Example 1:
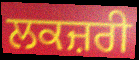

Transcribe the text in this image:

ਲਕਜ਼ਰੀ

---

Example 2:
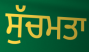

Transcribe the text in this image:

ਸੁੱਚਮਤਾ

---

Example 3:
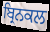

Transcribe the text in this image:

ਬ੍ਰਿਨਕਲ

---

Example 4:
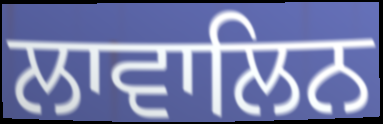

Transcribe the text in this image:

ਲਾਵਾਲਿਨ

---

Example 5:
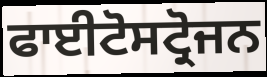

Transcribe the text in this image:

ਫਾਈਟੋਸਟ੍ਰੋਜਨ